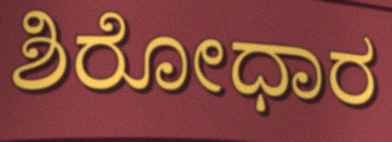
ಶಿರೋಧಾರ